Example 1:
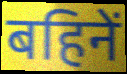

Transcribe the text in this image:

बहिनें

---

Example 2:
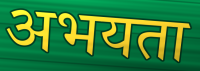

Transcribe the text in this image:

अभयता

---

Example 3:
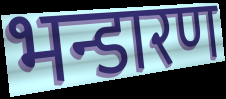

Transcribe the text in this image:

भन्डारण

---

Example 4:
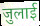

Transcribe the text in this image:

जुलाई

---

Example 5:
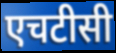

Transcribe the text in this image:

एचटीसी